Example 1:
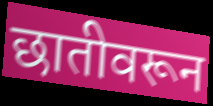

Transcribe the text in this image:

छातीवरून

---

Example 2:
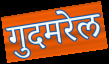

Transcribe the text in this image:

गुदमरेल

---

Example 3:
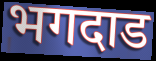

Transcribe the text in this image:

भगदाड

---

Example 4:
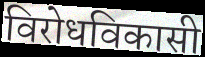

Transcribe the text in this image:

विरोधविकासी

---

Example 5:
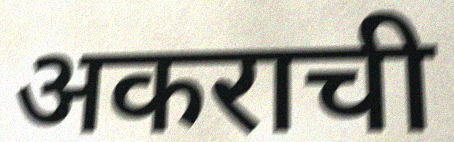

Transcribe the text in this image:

अकराची